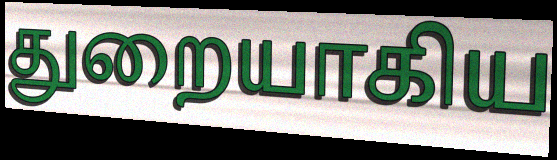
துறையாகிய